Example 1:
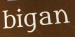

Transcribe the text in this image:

bigan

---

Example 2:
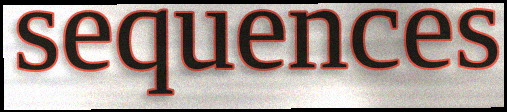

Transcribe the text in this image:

sequences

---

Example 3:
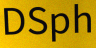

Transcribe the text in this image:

DSph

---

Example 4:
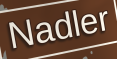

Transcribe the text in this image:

Nadler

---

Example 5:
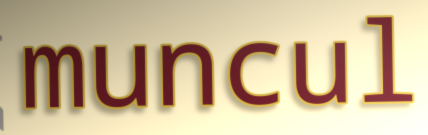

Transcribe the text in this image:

muncul